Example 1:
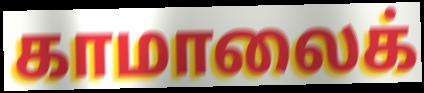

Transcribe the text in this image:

காமாலைக்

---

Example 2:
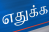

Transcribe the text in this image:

எதுக்க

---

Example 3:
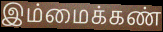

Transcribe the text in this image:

இம்மைக்கண்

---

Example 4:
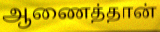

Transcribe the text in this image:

ஆணைத்தான்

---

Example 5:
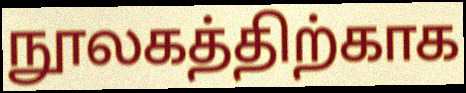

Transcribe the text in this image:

நூலகத்திற்காக